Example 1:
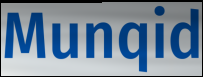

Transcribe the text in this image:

Munqid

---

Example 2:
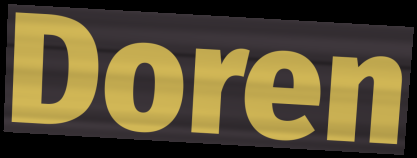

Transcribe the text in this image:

Doren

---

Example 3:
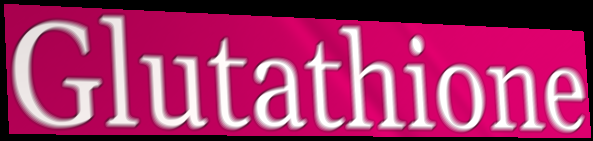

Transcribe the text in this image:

Glutathione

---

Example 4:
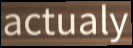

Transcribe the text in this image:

actualy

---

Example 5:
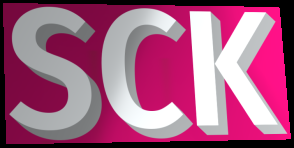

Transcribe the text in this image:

SCK